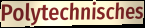
Polytechnisches